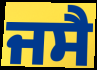
ਜਸੈ